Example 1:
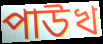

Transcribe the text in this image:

পাউখ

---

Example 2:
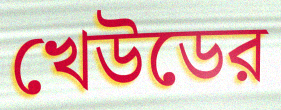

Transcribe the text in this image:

খেউডের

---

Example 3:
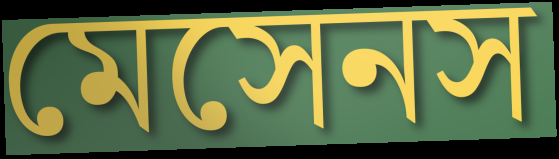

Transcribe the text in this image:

মেসেনস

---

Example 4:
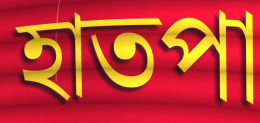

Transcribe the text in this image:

হাতপা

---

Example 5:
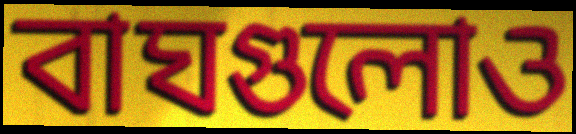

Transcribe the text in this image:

বাঘগুলোও